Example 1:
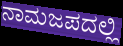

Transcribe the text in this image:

ನಾಮಜಪದಲ್ಲಿ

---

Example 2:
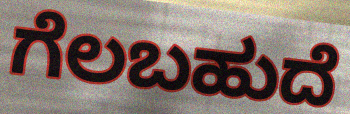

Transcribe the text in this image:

ಗೆಲಬಹುದೆ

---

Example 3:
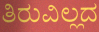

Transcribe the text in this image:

ತಿರುವಿಲ್ಲದ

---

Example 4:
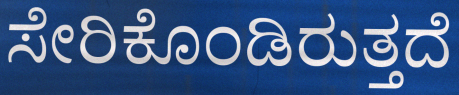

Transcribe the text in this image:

ಸೇರಿಕೊಂಡಿರುತ್ತದೆ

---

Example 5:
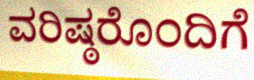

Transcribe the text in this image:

ವರಿಷ್ಠರೊಂದಿಗೆ